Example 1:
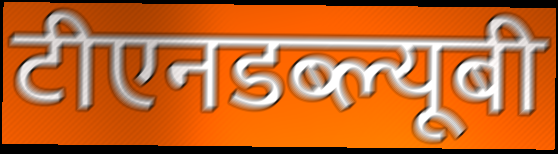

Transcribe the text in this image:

टीएनडब्ल्यूबी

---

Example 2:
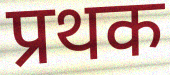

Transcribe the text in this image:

प्रथक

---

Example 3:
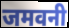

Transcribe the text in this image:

जमवनी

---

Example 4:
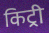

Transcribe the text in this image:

किट्री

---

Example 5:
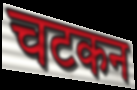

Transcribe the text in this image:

चटकन